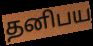
தனிபய